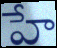
హే